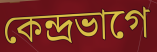
কেন্দ্রভাগে